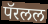
पॅरलल